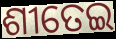
ଶୀତେଇ